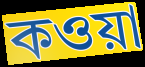
কওয়া